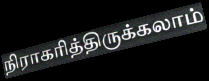
நிராகரித்திருக்கலாம்